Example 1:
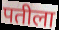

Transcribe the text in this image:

पतीला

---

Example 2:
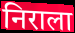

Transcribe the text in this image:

निराला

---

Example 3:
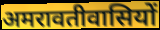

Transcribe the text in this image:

अमरावतीवासियों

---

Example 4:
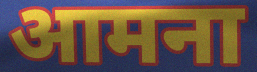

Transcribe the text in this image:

आमना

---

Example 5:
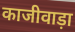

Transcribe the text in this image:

काजीवाड़ा